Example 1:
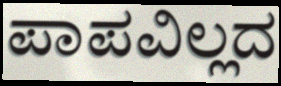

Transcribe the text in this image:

ಪಾಪವಿಲ್ಲದ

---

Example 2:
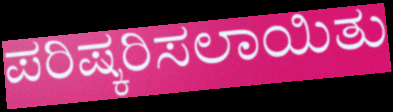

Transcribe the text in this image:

ಪರಿಷ್ಕರಿಸಲಾಯಿತು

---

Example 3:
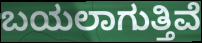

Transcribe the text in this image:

ಬಯಲಾಗುತ್ತಿವೆ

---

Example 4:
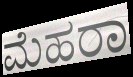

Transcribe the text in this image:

ಮೆಹರಾ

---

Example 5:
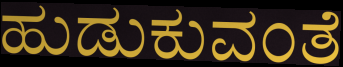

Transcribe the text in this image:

ಹುಡುಕುವಂತೆ